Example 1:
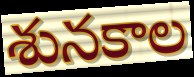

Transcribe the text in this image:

శునకాల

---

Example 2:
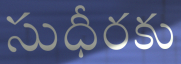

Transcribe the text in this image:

సుధీరకు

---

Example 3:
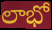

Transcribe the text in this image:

లాభో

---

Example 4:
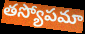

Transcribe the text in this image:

తస్యోపమా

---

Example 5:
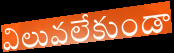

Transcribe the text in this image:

విలువలేకుండా